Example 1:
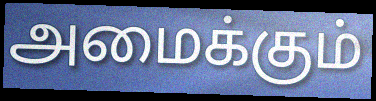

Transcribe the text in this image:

அமைக்கும்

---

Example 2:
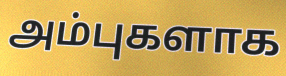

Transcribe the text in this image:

அம்புகளாக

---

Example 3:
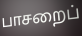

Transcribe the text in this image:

பாசறைப்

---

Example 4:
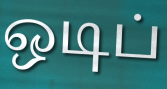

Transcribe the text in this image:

ஒடிப்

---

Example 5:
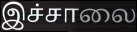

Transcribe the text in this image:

இச்சாலை